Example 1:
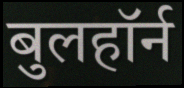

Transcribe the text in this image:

बुलहॉर्न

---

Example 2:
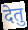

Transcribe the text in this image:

देतु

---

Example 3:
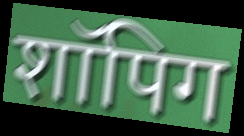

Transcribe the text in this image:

शॉपिग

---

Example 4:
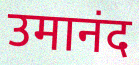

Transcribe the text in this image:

उमानंद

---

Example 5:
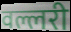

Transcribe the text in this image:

वल्लरी